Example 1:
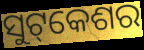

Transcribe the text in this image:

ସୁଟ୍‌କେଶର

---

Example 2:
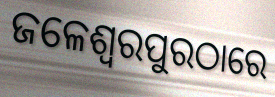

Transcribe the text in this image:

ଜଳେଶ୍ୱରପୁରଠାରେ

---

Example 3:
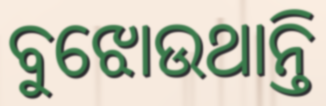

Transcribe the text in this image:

ବୁଝୋଉଥାନ୍ତି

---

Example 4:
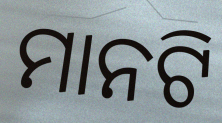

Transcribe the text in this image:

ମାନଟି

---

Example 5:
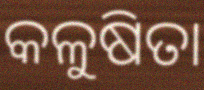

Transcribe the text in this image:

କଳୁଷିତା